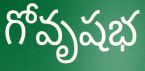
గోవృషభ